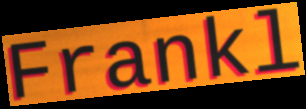
Frankl